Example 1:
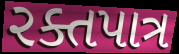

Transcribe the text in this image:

રક્તપાત્ર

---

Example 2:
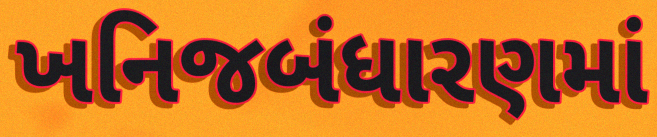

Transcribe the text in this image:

ખનિજબંધારણમાં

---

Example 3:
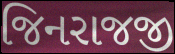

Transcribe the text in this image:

જિનરાજજી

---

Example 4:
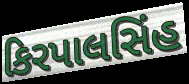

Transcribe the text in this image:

કિરપાલસિંહ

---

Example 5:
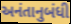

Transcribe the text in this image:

અનંતાનુબંધી